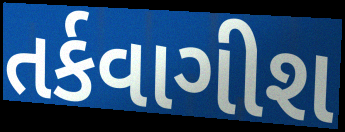
તર્કવાગીશ